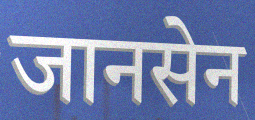
जानसेन